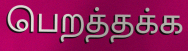
பெறத்தக்க